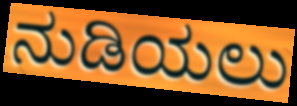
ನುಡಿಯಲು